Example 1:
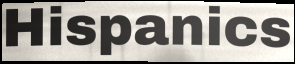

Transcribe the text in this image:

Hispanics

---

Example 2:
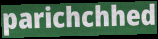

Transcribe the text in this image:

parichchhed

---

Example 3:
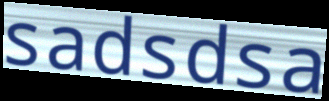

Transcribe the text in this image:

sadsdsa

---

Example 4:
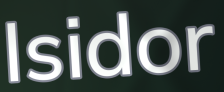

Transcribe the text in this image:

Isidor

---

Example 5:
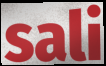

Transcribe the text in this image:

sali